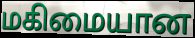
மகிமையான